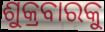
ଶୁକ୍ରବାରକୁ